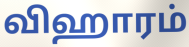
விஹாரம்